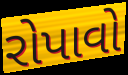
રોપાવો